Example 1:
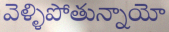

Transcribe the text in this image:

వెళ్ళిపోతున్నాయో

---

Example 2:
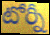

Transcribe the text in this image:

టోర్నీ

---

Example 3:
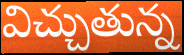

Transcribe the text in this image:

విచ్చుతున్న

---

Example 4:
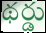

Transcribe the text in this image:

థర్డు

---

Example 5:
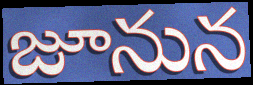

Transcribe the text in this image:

జూనున